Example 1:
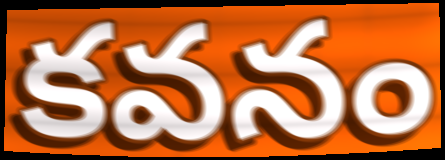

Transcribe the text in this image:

కవనం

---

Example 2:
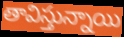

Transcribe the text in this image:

తావిస్తున్నాయి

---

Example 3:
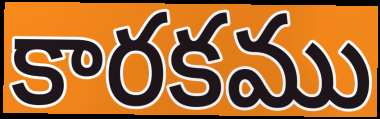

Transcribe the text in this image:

కారకము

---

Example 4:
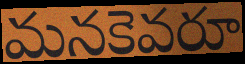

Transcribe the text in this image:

మనకెవరూ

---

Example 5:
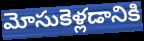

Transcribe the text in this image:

మోసుకెళ్లడానికి